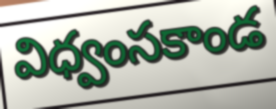
విధ్వంసకాండ